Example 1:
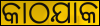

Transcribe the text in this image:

କାଠଯାକ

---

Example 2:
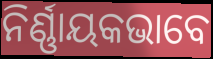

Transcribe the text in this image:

ନିର୍ଣ୍ଣାୟକଭାବେ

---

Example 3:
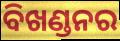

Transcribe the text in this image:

ବିଖଣ୍ଡନର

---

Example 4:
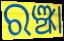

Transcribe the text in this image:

ରଞ୍ଝା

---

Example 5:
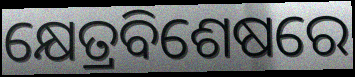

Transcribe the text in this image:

କ୍ଷେତ୍ରବିଶେଷରେ